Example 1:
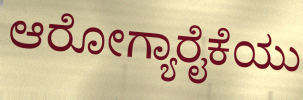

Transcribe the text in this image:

ಆರೋಗ್ಯಾರೈಕೆಯು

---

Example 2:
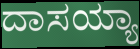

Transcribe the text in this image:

ದಾಸಯ್ಯಾ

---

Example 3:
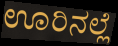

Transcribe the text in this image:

ಊರಿನಲ್ಲೆ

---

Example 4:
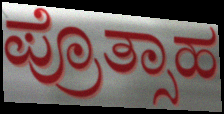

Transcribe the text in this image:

ಪ್ರೊತ್ಸಾಹ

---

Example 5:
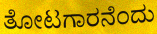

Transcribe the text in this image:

ತೋಟಗಾರನೆಂದು